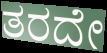
ತರದೇ